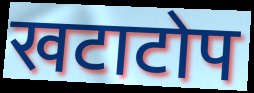
खटाटोप